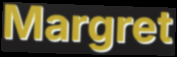
Margret